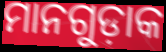
ମାନଗୁଡ଼ାକ